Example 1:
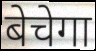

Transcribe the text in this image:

बेचेगा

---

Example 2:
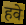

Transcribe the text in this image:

हवे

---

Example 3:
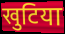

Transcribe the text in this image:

खुटिया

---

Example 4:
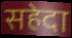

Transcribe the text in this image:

सहेदा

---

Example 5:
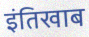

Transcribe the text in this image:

इंतिखाब